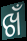
ଖଁ